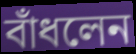
বাঁধলেন